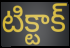
టిక్టాక్